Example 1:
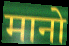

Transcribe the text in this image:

मानो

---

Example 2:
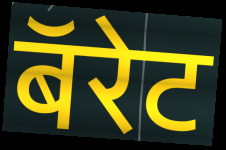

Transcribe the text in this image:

बॅरेट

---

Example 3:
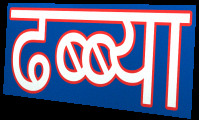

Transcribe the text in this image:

ढब्ब्या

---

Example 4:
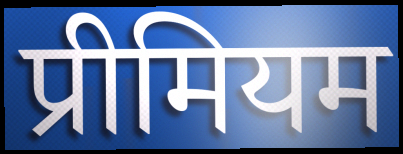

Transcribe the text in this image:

प्रीमियम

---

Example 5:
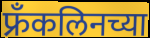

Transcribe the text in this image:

फ्रँकलिनच्या